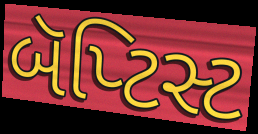
બૅપ્ટિસ્ટ